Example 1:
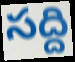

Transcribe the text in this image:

సద్ది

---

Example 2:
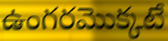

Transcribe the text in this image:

ఉంగరమొక్కటే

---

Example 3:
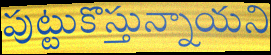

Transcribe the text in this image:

పుట్టుకొస్తున్నాయని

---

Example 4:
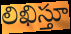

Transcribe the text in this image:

లిఖిస్తూ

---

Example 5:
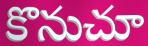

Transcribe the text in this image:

కొనుచూ